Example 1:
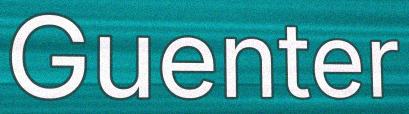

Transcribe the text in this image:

Guenter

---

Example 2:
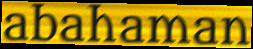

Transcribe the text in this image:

abahaman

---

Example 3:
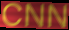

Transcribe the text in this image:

CNN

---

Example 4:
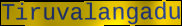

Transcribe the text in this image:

Tiruvalangadu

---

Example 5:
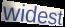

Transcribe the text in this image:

widest